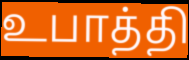
உபாத்தி